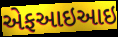
એફઆઇઆઇ